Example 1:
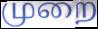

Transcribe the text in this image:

முறை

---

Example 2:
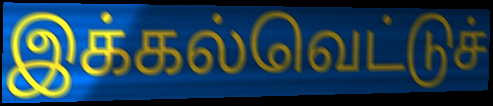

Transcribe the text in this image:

இக்கல்வெட்டுச்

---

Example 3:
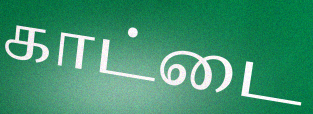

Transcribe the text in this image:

காட்டை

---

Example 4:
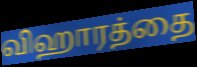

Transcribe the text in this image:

விஹாரத்தை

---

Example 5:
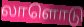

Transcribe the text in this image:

லாளொடு